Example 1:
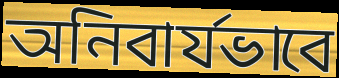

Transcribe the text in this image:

অনিবার্যভাবে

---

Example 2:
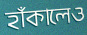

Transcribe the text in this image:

হাঁকালেও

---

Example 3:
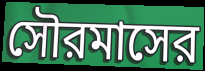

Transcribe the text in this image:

সৌরমাসের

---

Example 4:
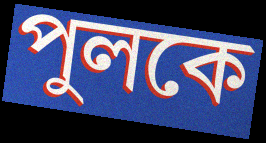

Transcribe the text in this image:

পুলকে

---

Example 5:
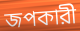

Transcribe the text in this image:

জপকারী